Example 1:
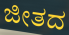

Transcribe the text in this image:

ಜೀತದ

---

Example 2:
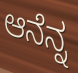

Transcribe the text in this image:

ಆನೆನ್ನ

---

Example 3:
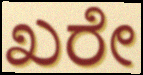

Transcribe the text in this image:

ಖರೇ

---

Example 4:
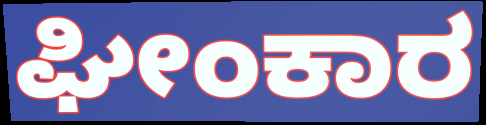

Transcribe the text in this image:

ಘೀಂಕಾರ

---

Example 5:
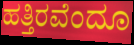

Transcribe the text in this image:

ಹತ್ತಿರವೆಂದೂ